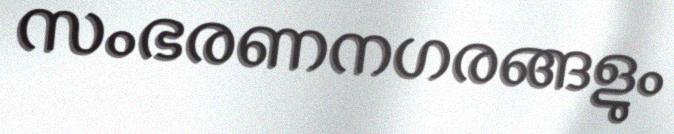
സംഭരണനഗരങ്ങളും